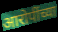
आरोपींच्या